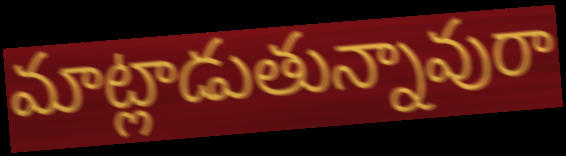
మాట్లాడుతున్నావురా